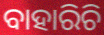
ବାହାରିଚି